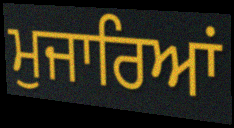
ਮੁਜਾਰਿਆਂ